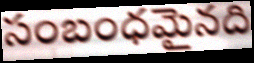
సంబంధమైనది